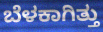
ಬೆಳಕಾಗಿತ್ತು